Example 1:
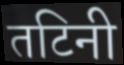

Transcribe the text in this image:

तटिनी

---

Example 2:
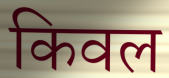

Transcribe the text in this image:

किवल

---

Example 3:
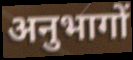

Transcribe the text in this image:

अनुभागों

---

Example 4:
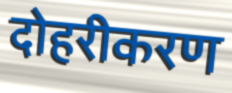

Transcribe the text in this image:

दोहरीकरण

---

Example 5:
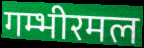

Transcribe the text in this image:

गम्भीरमल